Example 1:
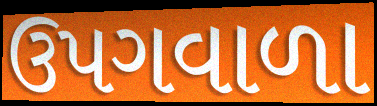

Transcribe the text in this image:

ઉપગવાળા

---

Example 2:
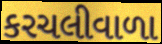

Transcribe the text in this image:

કરચલીવાળા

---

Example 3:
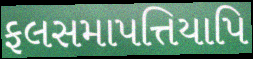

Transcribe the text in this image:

ફલસમાપત્તિયાપિ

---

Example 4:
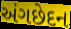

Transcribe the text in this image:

અંગછેદન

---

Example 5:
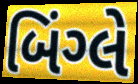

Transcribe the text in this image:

બિંગ્લે